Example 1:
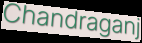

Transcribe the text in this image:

Chandraganj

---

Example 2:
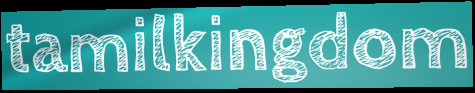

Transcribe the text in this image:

tamilkingdom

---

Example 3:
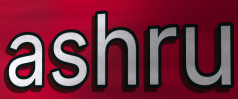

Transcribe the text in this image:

ashru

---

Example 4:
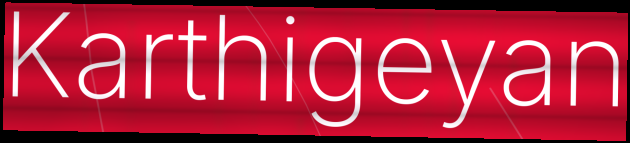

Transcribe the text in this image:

Karthigeyan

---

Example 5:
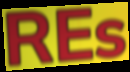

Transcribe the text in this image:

REs